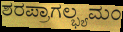
ಶರಪ್ರಾಗಲ್ಭ್ಯಮಂ